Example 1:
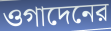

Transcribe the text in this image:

ওগাদেনের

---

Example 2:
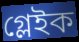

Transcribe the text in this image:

গ্লেইক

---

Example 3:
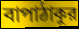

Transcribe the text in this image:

বাপাঠাকুর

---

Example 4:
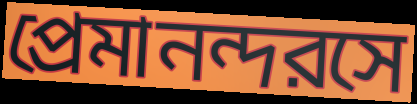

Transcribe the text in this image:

প্রেমানন্দরসে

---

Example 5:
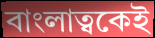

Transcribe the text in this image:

বাংলাত্বকেই